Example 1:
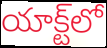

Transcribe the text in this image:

యాక్ట్‌లో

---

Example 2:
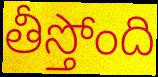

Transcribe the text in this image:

తీస్తోంది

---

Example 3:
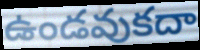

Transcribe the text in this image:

ఉండవుకదా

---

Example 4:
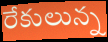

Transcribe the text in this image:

రేకులున్న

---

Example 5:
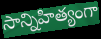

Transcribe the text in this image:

సాన్నిహిత్యంగా